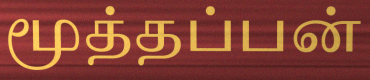
மூத்தப்பன்